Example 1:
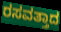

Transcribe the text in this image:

ರಸವತ್ತಾದ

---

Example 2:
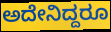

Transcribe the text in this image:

ಅದೇನಿದ್ದರೂ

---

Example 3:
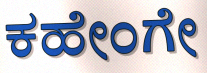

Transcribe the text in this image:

ಕಹೇಂಗೇ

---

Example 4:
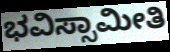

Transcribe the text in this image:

ಭವಿಸ್ಸಾಮೀತಿ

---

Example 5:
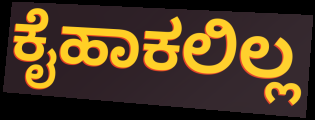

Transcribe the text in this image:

ಕೈಹಾಕಲಿಲ್ಲ